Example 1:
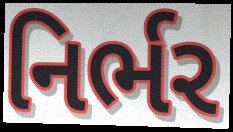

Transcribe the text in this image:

નિર્ભર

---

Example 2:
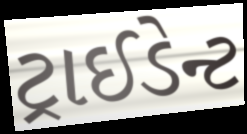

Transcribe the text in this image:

ટ્રાઈડેન્ટ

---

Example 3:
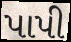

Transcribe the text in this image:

પાપી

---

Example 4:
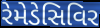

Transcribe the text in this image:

રેમેડેસિવિર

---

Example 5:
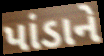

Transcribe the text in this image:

પાંડાને